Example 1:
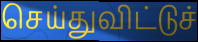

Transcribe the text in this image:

செய்துவிட்டுச்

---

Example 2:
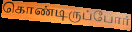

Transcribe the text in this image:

கொண்டிருப்போர்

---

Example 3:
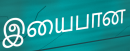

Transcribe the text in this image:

இயைபான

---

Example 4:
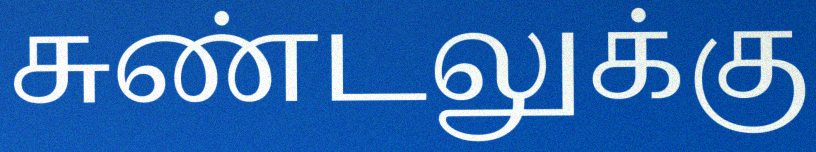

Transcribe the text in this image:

சுண்டலுக்கு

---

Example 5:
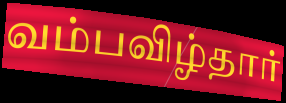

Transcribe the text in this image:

வம்பவிழ்தார்